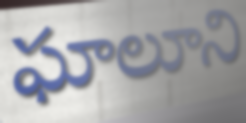
ఘాలూని